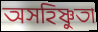
অসহিষ্ণুতা